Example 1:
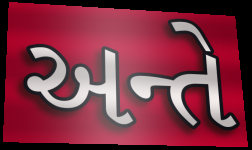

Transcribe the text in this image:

અન્તે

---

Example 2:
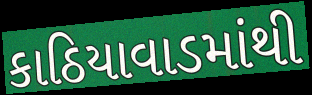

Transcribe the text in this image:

કાઠિયાવાડમાંથી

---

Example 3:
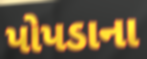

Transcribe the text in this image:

પોપડાના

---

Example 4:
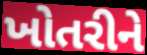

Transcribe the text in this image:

ખોતરીને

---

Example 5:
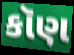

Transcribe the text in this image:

કૉણ